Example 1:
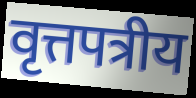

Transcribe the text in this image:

वृत्तपत्रीय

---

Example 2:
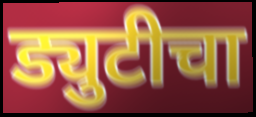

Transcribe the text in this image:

ड्युटीचा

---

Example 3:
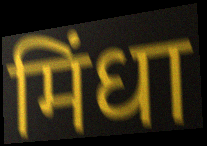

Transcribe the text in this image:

मिंधा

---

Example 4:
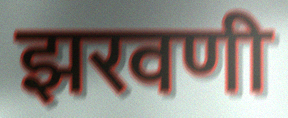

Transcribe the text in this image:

झरवणी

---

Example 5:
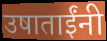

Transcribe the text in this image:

उषाताईंनी